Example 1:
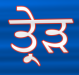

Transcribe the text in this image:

ਤ੍ਰੇੜ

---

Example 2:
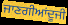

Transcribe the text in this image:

ਜਾਣਗੀਆਂਦੂਜੀ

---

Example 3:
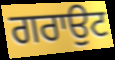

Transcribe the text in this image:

ਗਰਾਉਟ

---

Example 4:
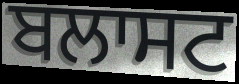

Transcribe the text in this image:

ਬਲਾਸਟ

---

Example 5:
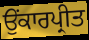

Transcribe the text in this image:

ਉਂਕਾਰਪ੍ਰੀਤ